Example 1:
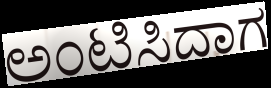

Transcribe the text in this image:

ಅಂಟಿಸಿದಾಗ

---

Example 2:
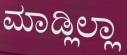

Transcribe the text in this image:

ಮಾಡ್ಲಿಲ್ಲಾ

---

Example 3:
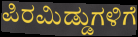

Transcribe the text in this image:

ಪಿರಮಿಡ್ಡುಗಳಿಗೆ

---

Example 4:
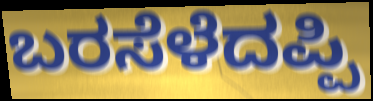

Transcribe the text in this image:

ಬರಸೆಳೆದಪ್ಪಿ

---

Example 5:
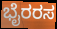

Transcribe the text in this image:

ಭೈರರಸ